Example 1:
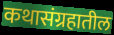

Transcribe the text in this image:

कथासंग्रहातील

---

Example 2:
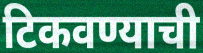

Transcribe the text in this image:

टिकवण्याची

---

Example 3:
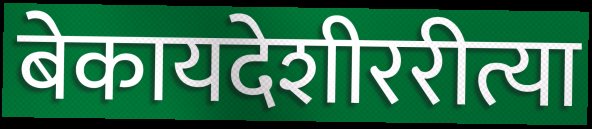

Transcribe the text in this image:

बेकायदेशीररीत्या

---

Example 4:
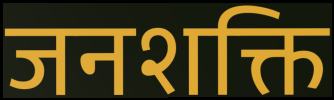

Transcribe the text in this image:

जनशक्ति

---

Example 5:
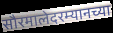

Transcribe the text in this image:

सौरमालेदरम्यानच्या